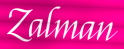
Zalman